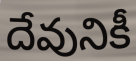
దేవునికీ